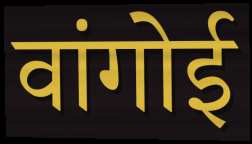
वांगोई